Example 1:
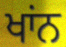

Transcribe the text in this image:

ਖਾਂਨ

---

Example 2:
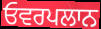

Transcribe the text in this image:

ਓਵਰਪਲਾਨ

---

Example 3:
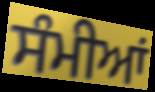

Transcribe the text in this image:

ਸੰਮੀਆਂ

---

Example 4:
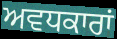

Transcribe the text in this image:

ਅਵਧਕਾਰਾਂ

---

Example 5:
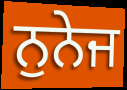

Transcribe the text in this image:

ਨੁਨੇਜ